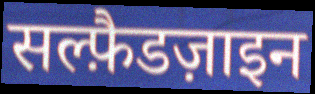
सल्फ़ैडज़ाइन